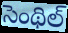
సెంథిల్